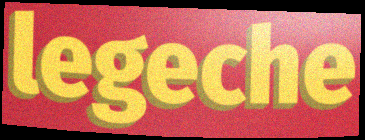
legeche